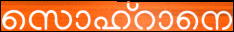
സൊഹ്റാനെ